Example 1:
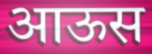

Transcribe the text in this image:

आऊस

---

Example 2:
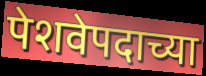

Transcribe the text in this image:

पेशवेपदाच्या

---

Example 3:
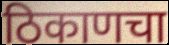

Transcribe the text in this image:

ठिकाणचा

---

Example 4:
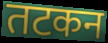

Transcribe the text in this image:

तटकन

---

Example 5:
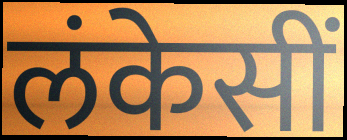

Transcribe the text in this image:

लंकेसीं